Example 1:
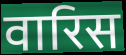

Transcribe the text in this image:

वारिस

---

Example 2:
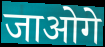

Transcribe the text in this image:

जाओगे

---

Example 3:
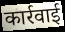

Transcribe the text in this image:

कार्रवाई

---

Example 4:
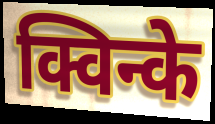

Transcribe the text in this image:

क्विन्के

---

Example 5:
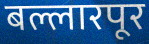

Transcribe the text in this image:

बल्लारपूर